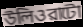
উলিওৱাটো